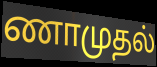
ணாமுதல்